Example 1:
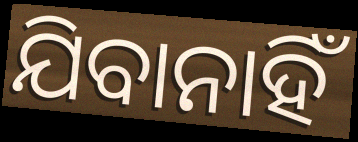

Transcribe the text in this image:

ଯିବାନାହିଁ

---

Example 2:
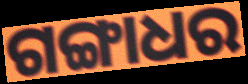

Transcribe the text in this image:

ଗଙ୍ଗାଧର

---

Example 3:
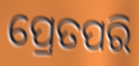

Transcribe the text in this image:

ପ୍ରେତପରି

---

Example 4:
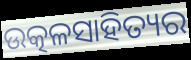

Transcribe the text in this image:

ଉତ୍କଳସାହିତ୍ୟର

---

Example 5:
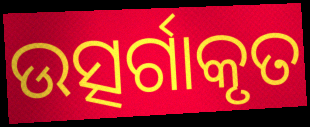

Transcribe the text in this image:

ଉତ୍ସର୍ଗାକୃତ